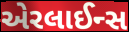
એરલાઈન્સ